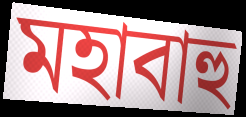
মহাবাহু